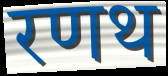
रणथ